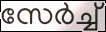
സേർച്ച്